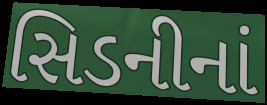
સિડનીનાં